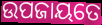
ଉପଜାୟତେ